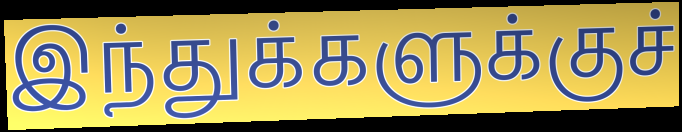
இந்துக்களுக்குச்